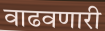
वाढवणारी